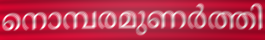
നൊമ്പരമുണർത്തി